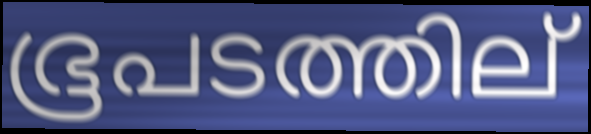
ഭൂപടത്തില്